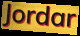
Jordar